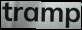
tramp